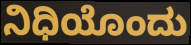
ನಿಧಿಯೊಂದು